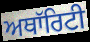
ਅਥਾੱਰਿਟੀ